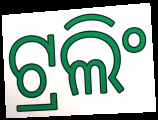
ଟ୍ରଲିଂ